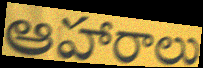
ఆహారాలు